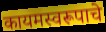
कायमस्वरूपाचे